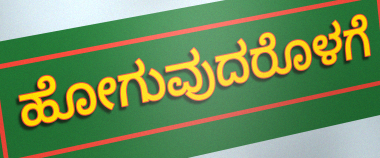
ಹೋಗುವುದರೊಳಗೆ